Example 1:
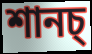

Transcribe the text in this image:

শানচ্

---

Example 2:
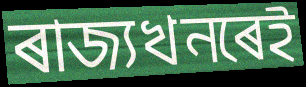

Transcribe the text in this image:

ৰাজ্যখনৰেই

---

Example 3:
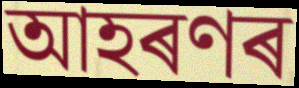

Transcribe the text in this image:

আহৰণৰ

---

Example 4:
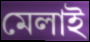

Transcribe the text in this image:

মেলাই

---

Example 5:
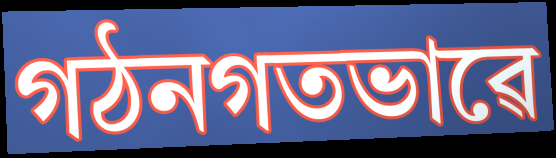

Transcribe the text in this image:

গঠনগতভাৱে